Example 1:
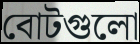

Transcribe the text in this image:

বোটগুলো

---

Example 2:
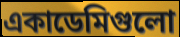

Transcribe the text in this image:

একাডেমিগুলো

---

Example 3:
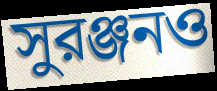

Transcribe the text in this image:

সুরঞ্জনও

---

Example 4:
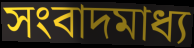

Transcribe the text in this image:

সংবাদমাধ্য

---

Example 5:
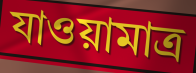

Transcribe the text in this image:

যাওয়ামাত্র